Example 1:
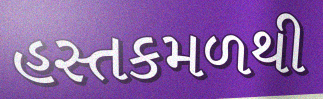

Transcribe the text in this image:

હસ્તકમળથી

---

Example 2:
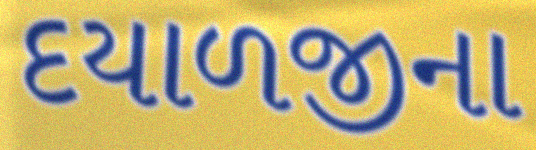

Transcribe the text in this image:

દયાળજીના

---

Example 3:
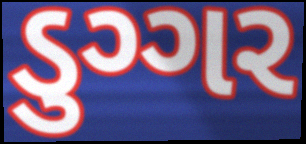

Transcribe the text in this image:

ડુગ્ગર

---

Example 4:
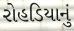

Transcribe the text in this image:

રોહડિયાનું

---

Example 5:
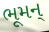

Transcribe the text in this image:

ભૂમન્